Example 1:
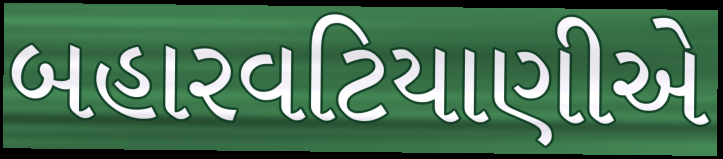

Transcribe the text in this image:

બહારવટિયાણીએ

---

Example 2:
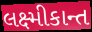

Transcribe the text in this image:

લક્ષ્મીકાન્ત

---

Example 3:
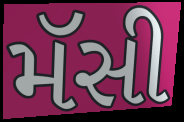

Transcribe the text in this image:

મૅસી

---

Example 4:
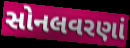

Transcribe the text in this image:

સોનલવરણાં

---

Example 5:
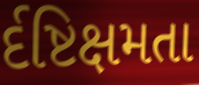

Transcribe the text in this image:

ર્દષ્ટિક્ષમતા